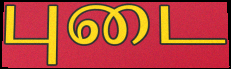
புடை